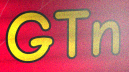
GTn